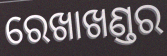
ରେଖାଖଣ୍ଡର